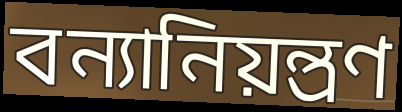
বন্যানিয়ন্ত্রণ